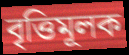
বৃত্তিমূলক